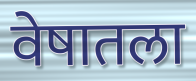
वेषातला